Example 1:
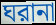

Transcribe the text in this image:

ঘরানা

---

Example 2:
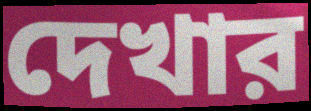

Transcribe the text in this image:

দেখার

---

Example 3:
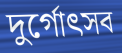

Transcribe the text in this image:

দুর্গোৎসব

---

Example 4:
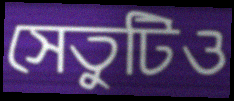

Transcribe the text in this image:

সেতুটিও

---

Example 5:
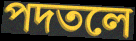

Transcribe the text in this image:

পদতলে